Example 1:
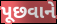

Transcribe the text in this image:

પૂછવાને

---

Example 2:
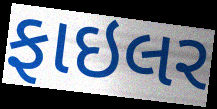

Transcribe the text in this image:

ફાઇલર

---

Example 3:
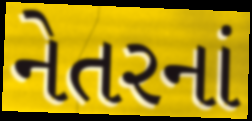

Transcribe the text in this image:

નેતરનાં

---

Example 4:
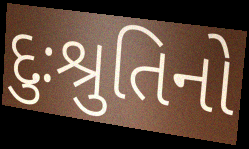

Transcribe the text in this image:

દુઃશ્રુતિનો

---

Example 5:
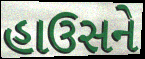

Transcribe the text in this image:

હાઉસને